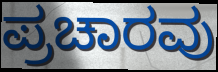
ಪ್ರಚಾರವು